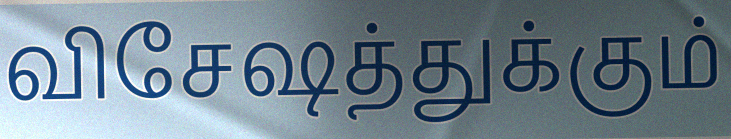
விசேஷத்துக்கும்